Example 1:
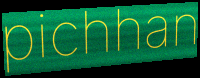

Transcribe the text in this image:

pichhan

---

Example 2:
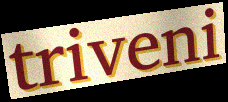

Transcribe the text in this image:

triveni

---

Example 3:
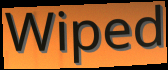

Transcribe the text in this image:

Wiped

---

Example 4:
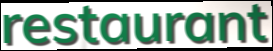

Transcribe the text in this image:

restaurant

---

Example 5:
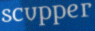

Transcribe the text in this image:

scupper